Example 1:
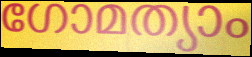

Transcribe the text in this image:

ഗോമത്യാം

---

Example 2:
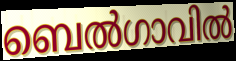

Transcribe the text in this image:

ബെൽഗാവിൽ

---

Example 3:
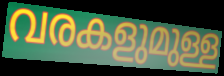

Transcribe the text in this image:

വരകളുമുള്ള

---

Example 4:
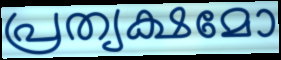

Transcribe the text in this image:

പ്രത്യക്ഷമോ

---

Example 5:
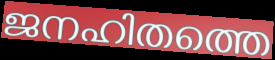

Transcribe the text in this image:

ജനഹിതത്തെ